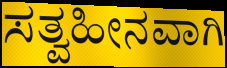
ಸತ್ವಹೀನವಾಗಿ